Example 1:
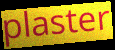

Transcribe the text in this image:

plaster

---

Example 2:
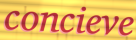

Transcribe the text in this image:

concieve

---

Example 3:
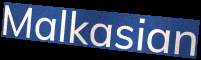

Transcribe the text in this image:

Malkasian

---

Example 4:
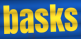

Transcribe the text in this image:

basks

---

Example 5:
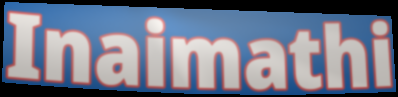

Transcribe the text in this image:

Inaimathi